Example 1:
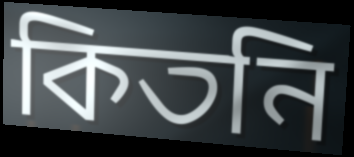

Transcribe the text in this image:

কিতনি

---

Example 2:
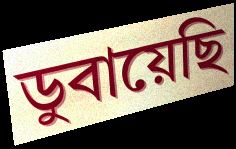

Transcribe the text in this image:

ডুবায়েছি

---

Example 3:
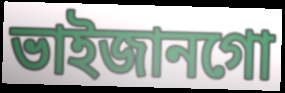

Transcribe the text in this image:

ভাইজানগো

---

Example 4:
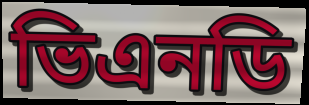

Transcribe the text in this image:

ভিএনডি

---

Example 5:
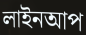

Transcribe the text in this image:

লাইনআপ